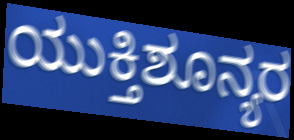
ಯುಕ್ತಿಶೂನ್ಯರ